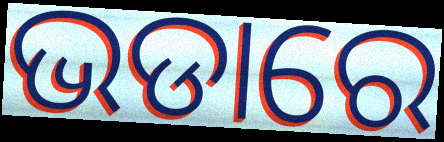
ଭଡାରେ